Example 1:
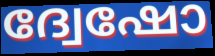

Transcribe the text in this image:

ദ്വേഷോ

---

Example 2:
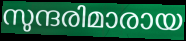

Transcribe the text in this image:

സുന്ദരിമാരായ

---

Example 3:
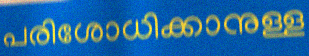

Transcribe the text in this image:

പരിശോധിക്കാനുള്ള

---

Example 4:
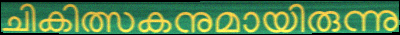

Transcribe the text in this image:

ചികിത്സകനുമായിരുന്നു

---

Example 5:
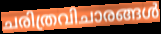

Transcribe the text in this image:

ചരിത്രവിചാരങ്ങൾ